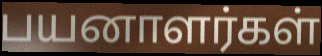
பயனாளர்கள்